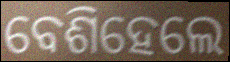
ବେଶିହେଲେ